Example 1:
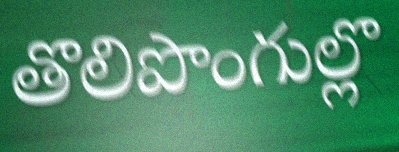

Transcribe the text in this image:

తొలిపొంగుల్లొ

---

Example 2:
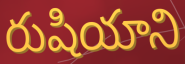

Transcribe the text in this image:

రుషియాని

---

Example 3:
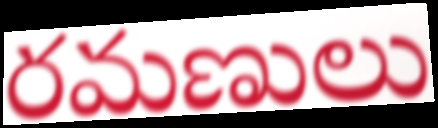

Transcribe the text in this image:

రమణులు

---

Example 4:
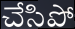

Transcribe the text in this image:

చేసిపో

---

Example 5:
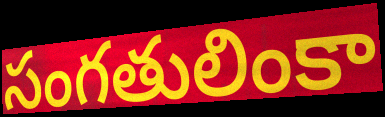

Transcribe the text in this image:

సంగతులింకా